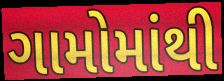
ગામોમાંથી